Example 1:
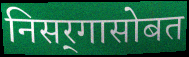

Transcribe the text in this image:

निसर्गासोबत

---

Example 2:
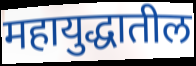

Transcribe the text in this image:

महायुद्धातील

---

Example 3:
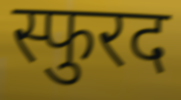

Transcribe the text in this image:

स्फुरद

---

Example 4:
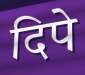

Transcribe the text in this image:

दिपे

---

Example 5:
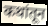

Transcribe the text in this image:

कथांतून